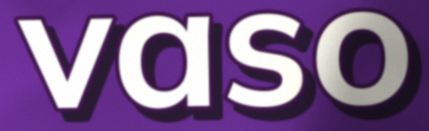
vaso